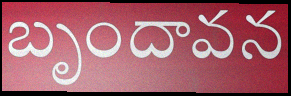
బృందావన